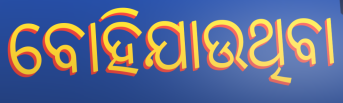
ବୋହିଯାଉଥିବା